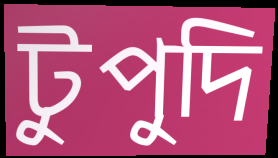
টুপুদি